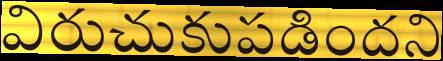
విరుచుకుపడిందని